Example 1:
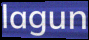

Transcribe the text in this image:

lagun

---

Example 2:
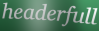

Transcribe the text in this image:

headerfull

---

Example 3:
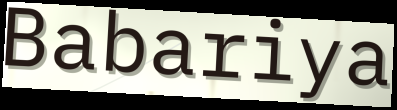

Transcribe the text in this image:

Babariya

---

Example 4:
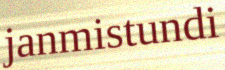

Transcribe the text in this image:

janmistundi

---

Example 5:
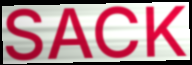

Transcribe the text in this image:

SACK